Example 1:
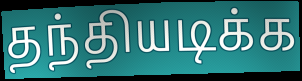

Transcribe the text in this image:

தந்தியடிக்க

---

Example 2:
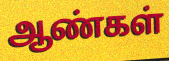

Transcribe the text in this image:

ஆண்கள்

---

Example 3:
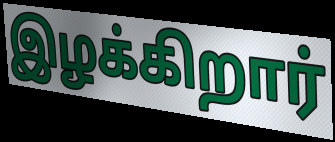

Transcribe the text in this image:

இழக்கிறார்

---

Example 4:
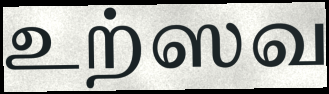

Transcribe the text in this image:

உற்ஸவ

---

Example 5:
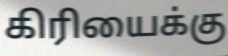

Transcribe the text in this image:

கிரியைக்கு